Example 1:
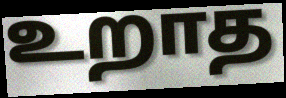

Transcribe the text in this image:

உறாத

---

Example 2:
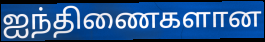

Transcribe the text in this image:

ஐந்திணைகளான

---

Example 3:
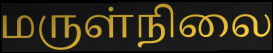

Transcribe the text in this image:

மருள்நிலை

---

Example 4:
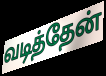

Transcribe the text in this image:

வடித்தேன்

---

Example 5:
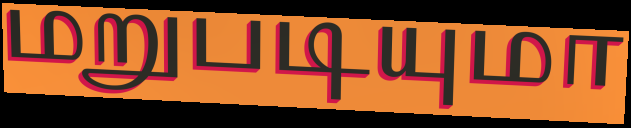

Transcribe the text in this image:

மறுபடியுமா